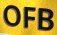
OFB